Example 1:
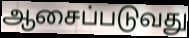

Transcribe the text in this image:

ஆசைப்படுவது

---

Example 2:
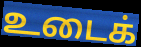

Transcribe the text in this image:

உடைக்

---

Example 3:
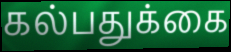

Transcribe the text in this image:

கல்பதுக்கை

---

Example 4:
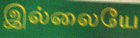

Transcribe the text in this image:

இல்லையே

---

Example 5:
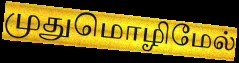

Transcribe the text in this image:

முதுமொழிமேல்